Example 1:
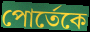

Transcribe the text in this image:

পোর্তেকে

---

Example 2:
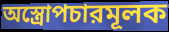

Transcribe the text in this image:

অস্ত্রোপচারমূলক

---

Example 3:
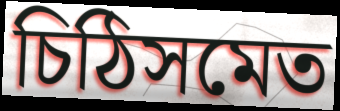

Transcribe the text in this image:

চিঠিসমেত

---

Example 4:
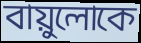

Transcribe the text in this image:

বায়ুলোকে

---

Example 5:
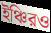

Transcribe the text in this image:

ইঞ্চিরও